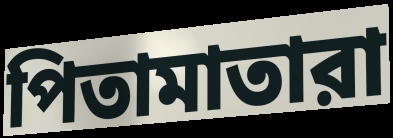
পিতামাতারা